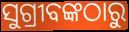
ସୁଗ୍ରୀବଙ୍କଠାରୁ